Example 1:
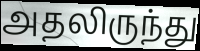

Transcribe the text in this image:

அதலிருந்து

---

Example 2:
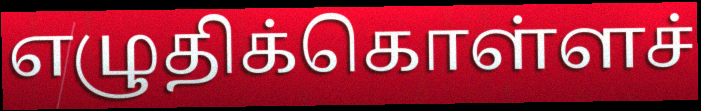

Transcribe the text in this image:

எழுதிக்கொள்ளச்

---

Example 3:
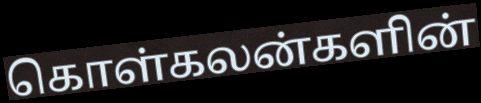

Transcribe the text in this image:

கொள்கலன்களின்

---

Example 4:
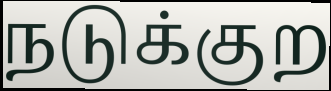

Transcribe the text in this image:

நடுக்குற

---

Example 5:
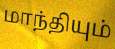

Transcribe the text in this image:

மாந்தியும்